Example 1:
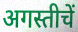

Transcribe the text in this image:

अगस्तीचें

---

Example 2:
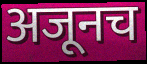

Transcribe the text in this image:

अजूनच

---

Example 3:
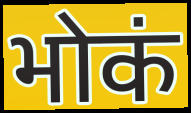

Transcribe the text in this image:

भोकं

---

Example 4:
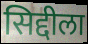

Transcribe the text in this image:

सिद्दीला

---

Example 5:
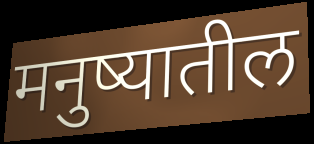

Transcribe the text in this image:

मनुष्यातील